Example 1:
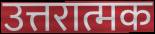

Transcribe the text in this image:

उत्तरात्मक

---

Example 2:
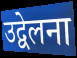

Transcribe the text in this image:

उद्वेलना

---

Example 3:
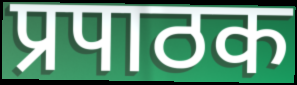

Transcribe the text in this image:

प्रपाठक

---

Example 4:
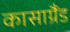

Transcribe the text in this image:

कासाग्रैंड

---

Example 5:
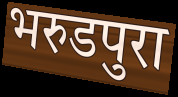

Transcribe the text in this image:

भरुडपुरा